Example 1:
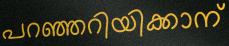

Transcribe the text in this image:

പറഞ്ഞറിയിക്കാന്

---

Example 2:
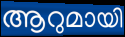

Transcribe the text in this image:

ആറുമായി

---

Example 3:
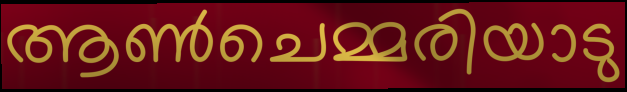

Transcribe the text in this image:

ആൺചെമ്മരിയാടു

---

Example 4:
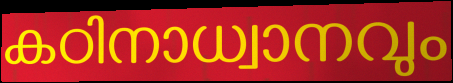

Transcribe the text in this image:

കഠിനാധ്വാനവും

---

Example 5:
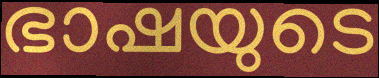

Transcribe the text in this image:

ഭാഷയുടെ